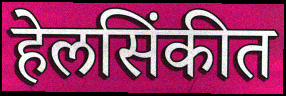
हेलसिंकीत